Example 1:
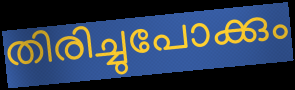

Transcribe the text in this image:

തിരിച്ചുപോക്കും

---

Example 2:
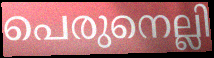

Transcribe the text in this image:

പെരുനെല്ലി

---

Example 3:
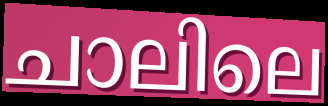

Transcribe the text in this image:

ചാലിലെ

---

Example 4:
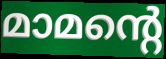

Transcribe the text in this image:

മാമന്റെ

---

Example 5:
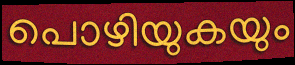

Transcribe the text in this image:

പൊഴിയുകയും